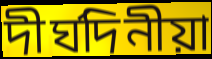
দীৰ্ঘদিনীয়া